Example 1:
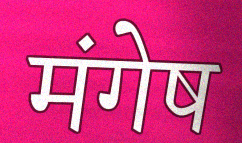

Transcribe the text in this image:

मंगेष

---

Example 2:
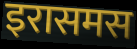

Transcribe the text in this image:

इरासमस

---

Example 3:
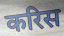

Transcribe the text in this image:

करिस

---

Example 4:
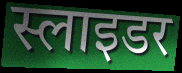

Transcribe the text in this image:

स्लाइडर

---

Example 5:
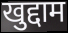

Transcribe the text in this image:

खुद्दाम